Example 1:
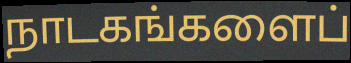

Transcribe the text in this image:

நாடகங்களைப்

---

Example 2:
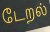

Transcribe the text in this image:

டேறல்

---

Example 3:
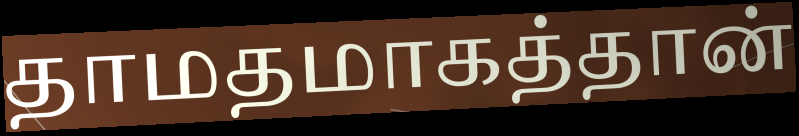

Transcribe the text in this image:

தாமதமாகத்தான்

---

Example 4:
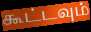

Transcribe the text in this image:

கூட்டவும்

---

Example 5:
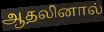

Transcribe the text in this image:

ஆதலினால்